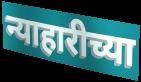
न्याहारीच्या